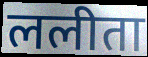
ललीता